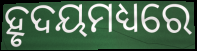
ହୃଦୟମଧ୍ୟରେ